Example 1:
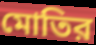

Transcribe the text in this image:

মোতির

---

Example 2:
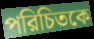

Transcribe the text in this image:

পরিচিতকে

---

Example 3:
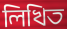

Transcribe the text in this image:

লিখিত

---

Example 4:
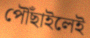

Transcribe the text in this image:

পৌঁছাইলেই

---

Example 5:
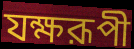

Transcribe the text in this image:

যক্ষরূপী